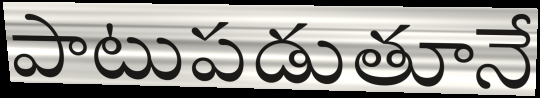
పాటుపడుతూనే